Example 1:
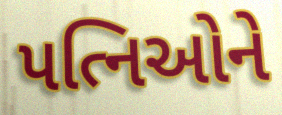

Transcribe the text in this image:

પત્નિઓને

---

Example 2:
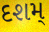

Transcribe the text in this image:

દશમ્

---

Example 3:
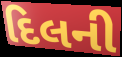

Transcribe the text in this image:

દિલની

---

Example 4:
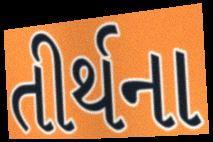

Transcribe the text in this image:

તીર્થના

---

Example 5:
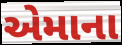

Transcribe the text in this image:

એમાના